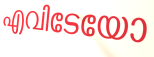
എവിടേയോ